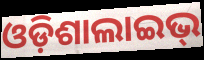
ଓଡ଼ିଶାଲାଇଭ୍